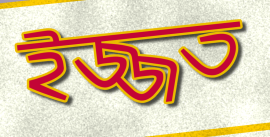
ইজ্জত